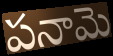
పనామె